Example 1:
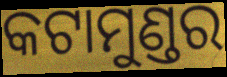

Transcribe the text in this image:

କଟାମୁଣ୍ଡର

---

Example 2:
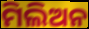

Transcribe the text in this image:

ମିଲିଅନ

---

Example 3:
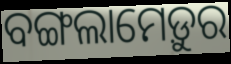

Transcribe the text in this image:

ବଙ୍ଗଲାମେଡ଼ୁର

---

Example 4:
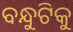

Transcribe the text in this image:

ବନ୍ଧୁଟିକୁ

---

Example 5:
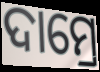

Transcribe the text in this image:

ଦାମ୍ରେ